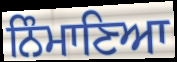
ਨਿੰਮਾਣਿਆ